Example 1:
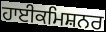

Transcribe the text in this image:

ਹਾਈਕਮਿਸ਼ਨਰ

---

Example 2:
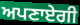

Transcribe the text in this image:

ਅਪਣਾਏਗੀ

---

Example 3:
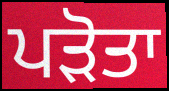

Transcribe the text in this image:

ਪੜੋਤਾ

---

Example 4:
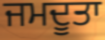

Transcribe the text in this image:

ਜਮਦੂਤਾ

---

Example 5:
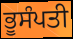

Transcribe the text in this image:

ਭੂਸੰਪਤੀ